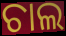
ଚାଲ